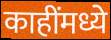
काहींमध्ये